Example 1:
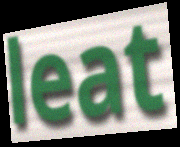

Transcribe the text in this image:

leat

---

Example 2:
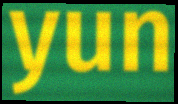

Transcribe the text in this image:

yun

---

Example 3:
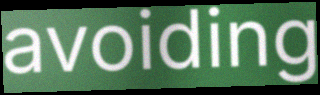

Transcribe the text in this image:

avoiding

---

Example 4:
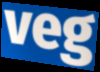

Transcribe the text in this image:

veg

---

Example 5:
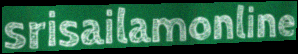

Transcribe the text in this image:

srisailamonline